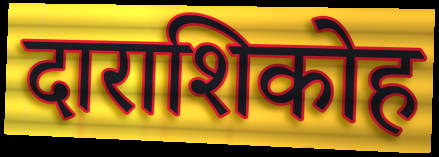
दाराशिकोह